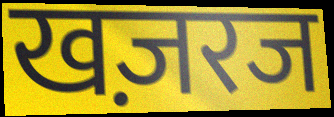
खज़रज